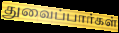
துவைப்பார்கள்